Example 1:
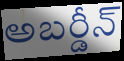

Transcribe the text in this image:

అబర్డీన్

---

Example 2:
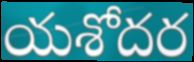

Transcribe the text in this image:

యశోదర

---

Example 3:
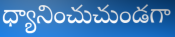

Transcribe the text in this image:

ధ్యానించుచుండగా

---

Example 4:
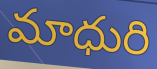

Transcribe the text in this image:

మాధురి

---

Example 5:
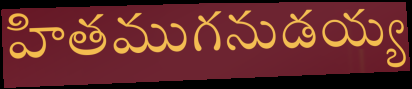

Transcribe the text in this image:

హితముగనుడయ్య